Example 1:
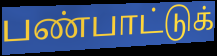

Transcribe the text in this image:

பண்பாட்டுக்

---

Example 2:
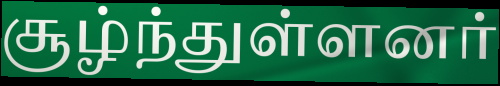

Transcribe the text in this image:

சூழ்ந்துள்ளனர்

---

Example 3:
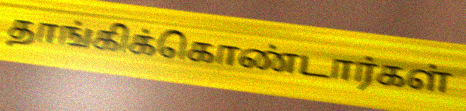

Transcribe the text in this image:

தாங்கிக்கொண்டார்கள்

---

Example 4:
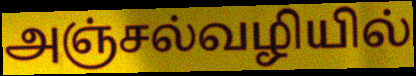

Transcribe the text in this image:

அஞ்சல்வழியில்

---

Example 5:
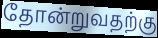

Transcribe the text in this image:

தோன்றுவதற்கு